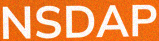
NSDAP